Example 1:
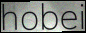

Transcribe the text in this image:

hobei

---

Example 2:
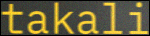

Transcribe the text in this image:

takali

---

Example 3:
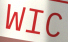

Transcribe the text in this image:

WIC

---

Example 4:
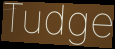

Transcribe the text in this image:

Tudge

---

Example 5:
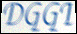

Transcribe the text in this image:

DGGI